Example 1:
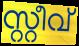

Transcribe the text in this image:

സ്റ്റീവ്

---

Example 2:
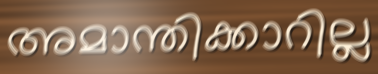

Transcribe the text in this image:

അമാന്തിക്കാറില്ല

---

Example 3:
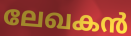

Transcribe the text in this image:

ലേഖകൻ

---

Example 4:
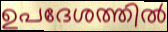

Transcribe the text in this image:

ഉപദേശത്തിൽ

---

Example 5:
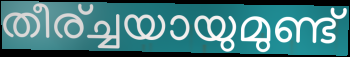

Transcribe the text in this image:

തീര്ച്ചയായുമുണ്ട്